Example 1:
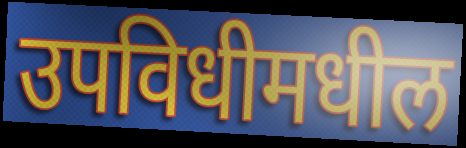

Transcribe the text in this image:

उपविधीमधील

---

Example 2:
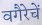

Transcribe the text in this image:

वगैरेचें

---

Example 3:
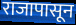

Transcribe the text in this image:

राजापासून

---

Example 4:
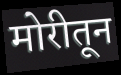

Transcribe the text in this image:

मोरीतून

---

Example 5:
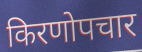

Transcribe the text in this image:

किरणोपचार